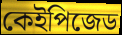
কেইপিজেড